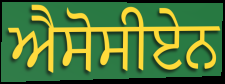
ਐਸੋਸੀਏਨ